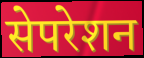
सेपरेशन